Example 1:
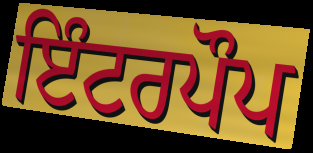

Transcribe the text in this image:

ਇੰਟਰਪੌਪ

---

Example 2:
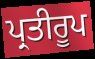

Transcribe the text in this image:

ਪ੍ਰਤੀਰੂਪ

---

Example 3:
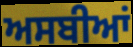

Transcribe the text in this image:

ਅਸਬੀਆਂ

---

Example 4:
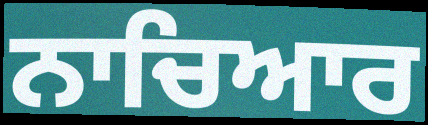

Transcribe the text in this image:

ਨਾਚਿਆਰ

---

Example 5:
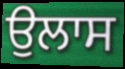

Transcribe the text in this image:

ਉਲਾਸ